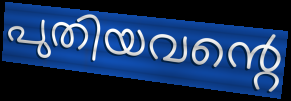
പുതിയവന്റെ